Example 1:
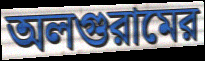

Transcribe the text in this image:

অলগুরামের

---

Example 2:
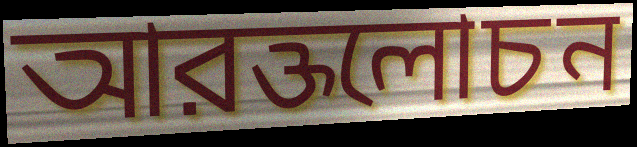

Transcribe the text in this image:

আরক্তলোচন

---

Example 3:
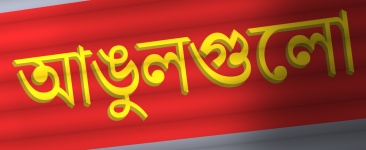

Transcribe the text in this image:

আঙুলগুলো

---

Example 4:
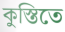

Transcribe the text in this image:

কুস্তিতে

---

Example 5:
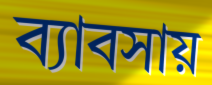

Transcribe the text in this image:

ব্যাবসায়